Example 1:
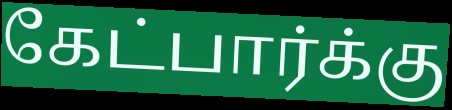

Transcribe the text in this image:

கேட்பார்க்கு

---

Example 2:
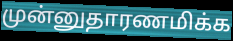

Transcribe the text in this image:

முன்னுதாரணமிக்க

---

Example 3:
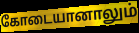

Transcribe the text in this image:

கோடையானாலும்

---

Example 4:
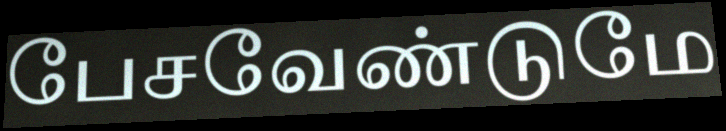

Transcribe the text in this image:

பேசவேண்டுமே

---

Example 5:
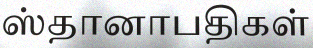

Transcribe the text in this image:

ஸ்தானாபதிகள்